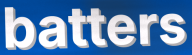
batters